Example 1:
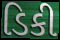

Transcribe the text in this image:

ડિકી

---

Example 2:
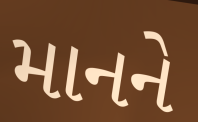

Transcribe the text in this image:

માનને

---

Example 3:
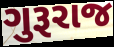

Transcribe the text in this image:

ગુરૂરાજ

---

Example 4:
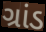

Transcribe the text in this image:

ગ્રાંડ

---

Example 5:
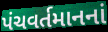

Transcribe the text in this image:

પંચવર્તમાનનાં